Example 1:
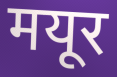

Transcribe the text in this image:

मयूर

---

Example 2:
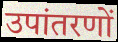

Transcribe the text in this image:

उपांतरणों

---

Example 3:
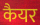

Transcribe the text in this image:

कैयर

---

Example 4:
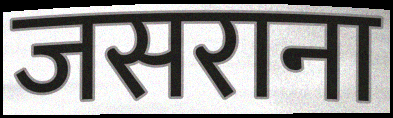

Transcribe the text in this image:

जसराना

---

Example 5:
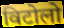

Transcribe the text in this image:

विटोलो